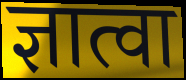
ज्ञात्वा